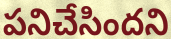
పనిచేసిందని